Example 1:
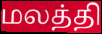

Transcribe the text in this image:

மலத்தி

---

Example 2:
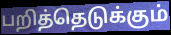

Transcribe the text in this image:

பறித்தெடுக்கும்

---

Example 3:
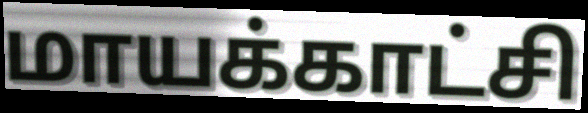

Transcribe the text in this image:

மாயக்காட்சி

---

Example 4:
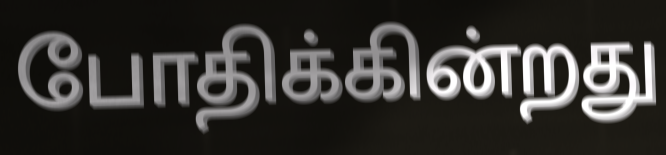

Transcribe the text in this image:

போதிக்கின்றது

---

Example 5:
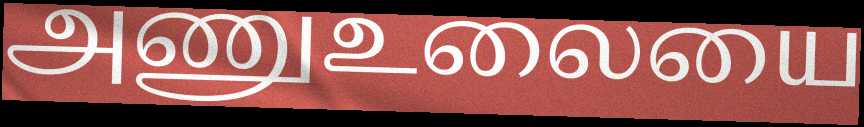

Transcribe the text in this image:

அணுஉலையை